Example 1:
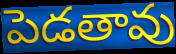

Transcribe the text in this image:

పెడతావు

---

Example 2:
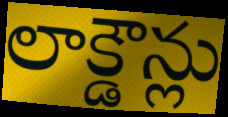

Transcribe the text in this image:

లాక్డౌన్లు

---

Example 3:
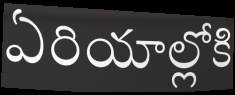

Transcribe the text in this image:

ఏరియాల్లోకి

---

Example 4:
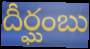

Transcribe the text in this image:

దీర్ఘంబు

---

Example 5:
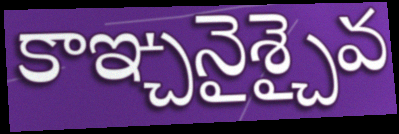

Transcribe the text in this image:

కాఞ్చనైశ్చైవ